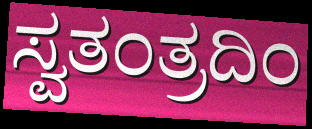
ಸ್ವತಂತ್ರದಿಂ